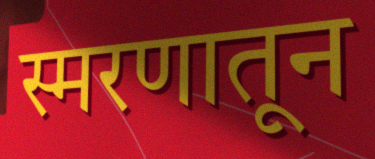
स्मरणातून